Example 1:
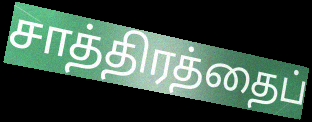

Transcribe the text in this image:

சாத்திரத்தைப்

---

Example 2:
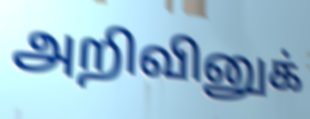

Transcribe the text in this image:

அறிவினுக்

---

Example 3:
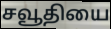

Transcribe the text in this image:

சவூதியை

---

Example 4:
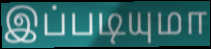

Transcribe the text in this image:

இப்படியுமா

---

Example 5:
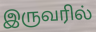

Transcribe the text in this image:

இருவரில்